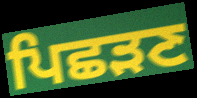
ਪਿਛੜਣ